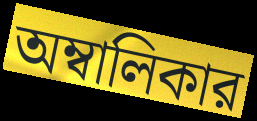
অম্বালিকার